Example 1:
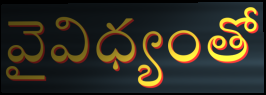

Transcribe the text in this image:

వైవిధ్యంతో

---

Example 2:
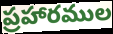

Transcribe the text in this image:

ప్రహారముల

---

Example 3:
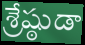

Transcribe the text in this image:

శ్రేష్ఠుడా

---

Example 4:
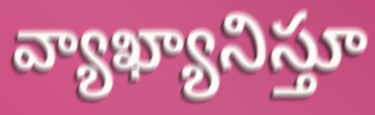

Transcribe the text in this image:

వ్యాఖ్యానిస్తూ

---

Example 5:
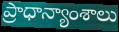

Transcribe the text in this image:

ప్రాధాన్యాంశాలు